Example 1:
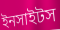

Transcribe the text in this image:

ইনসাইটস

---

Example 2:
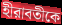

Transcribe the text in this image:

হীরাবতীকে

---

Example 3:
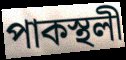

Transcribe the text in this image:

পাকস্থলী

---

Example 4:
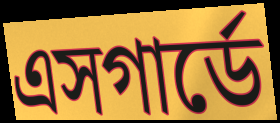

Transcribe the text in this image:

এসগার্ডে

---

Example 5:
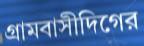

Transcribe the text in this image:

গ্রামবাসীদিগের